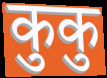
कुकु